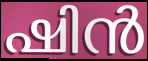
ഷിൻ